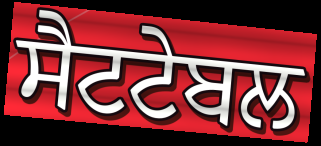
ਸੈਟਟੇਬਲ